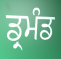
ਡ੍ਰਮੰਡ